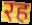
रह